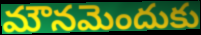
మౌనమెందుకు